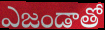
ఎజండాతో